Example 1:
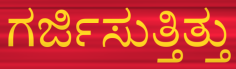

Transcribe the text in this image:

ಗರ್ಜಿಸುತ್ತಿತ್ತು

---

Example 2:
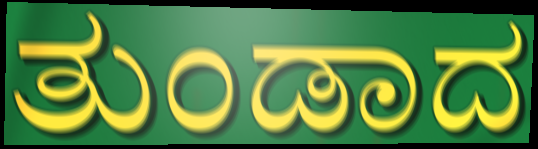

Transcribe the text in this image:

ತುಂಡಾದ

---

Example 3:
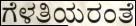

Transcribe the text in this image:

ಗೆಳತಿಯರಂತೆ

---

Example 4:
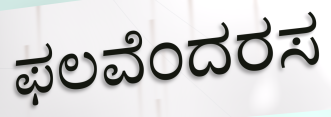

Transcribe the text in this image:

ಫಲವೆಂದರಸ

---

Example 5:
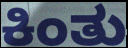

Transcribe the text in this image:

ಕಿಂತು